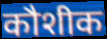
कौशीक